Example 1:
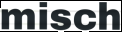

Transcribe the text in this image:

misch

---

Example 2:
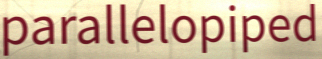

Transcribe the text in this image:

parallelopiped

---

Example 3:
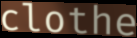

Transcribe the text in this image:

clothe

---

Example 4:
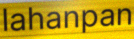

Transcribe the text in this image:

lahanpan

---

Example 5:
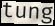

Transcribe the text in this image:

tung